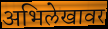
अभिलेखावर